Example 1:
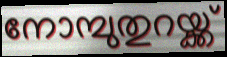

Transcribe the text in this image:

നോമ്പുതുറയ്ക്ക്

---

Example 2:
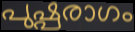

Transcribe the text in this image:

പുഷ്പരാഗം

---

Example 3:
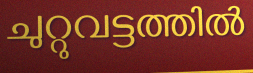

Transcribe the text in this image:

ചുറ്റുവട്ടത്തിൽ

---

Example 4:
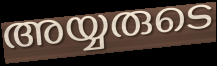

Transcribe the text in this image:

അയ്യരുടെ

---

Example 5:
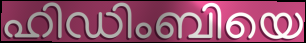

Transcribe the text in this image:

ഹിഡിംബിയെ